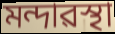
মন্দাৱস্থা